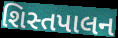
શિસ્તપાલન